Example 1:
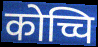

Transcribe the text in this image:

कोच्चि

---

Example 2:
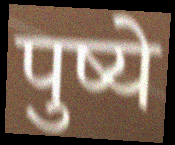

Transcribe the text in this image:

पुष्ये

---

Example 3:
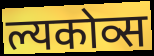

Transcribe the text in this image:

ल्यकोव्स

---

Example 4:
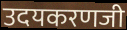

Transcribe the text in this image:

उदयकरणजी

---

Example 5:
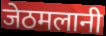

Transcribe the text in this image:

जेठमलानी